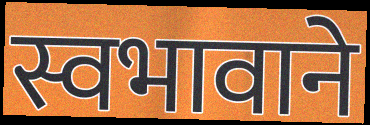
स्वभावाने